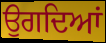
ਉਗਦਿਆਂ